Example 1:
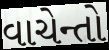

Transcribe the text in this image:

વાચેન્તો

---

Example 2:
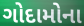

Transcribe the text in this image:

ગોદામોના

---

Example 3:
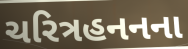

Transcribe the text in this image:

ચરિત્રહનનના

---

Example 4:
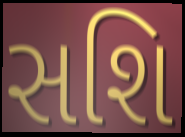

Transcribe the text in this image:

સશિ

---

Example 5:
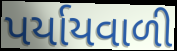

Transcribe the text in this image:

પર્યાયવાળી